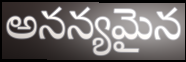
అనన్యమైన